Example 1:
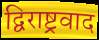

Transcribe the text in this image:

द्विराष्ट्रवाद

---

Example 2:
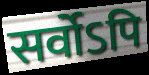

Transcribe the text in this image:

सर्वोऽपि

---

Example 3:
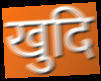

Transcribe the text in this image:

खुदि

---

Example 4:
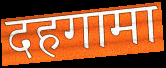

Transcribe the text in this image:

दहगामा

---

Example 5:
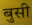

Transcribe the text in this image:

बुसी